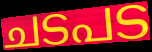
ചടപട